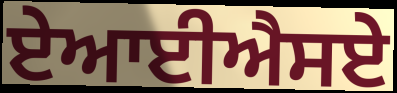
ਏਆਈਐਸਏ